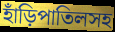
হাঁড়িপাতিলসহ